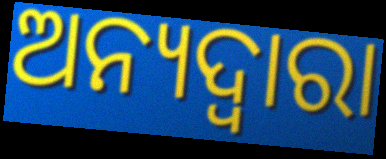
ଅନ୍ୟଦ୍ୱାରା